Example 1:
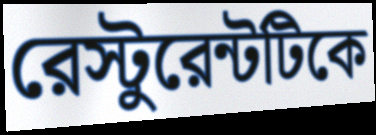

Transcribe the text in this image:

রেস্টুরেন্টটিকে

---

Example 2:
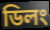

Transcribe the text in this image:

ডিলং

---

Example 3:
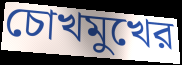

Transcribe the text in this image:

চোখমুখের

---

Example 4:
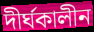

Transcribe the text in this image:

দীর্ঘকালীন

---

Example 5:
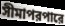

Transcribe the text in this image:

সীমাপরপারে